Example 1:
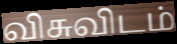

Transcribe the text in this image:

விசுவிடம்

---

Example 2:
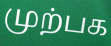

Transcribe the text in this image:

முற்பக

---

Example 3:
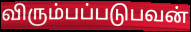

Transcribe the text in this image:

விரும்பப்படுபவன்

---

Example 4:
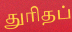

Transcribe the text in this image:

துரிதப்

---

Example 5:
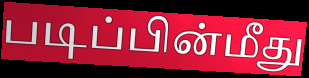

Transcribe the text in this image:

படிப்பின்மீது